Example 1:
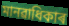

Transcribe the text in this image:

মানৱাধিকাৰ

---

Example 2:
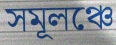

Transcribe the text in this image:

সমূলঞ্চে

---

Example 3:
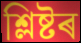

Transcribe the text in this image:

শ্লিষ্টৰ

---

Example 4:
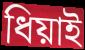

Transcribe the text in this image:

ধিয়াই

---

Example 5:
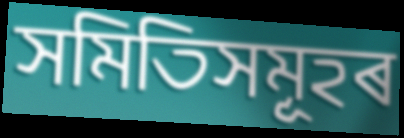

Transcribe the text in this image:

সমিতিসমূহৰ